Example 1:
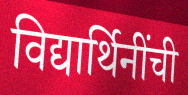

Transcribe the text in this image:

विद्यार्थिनींची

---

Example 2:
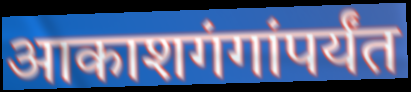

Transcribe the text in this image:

आकाशगंगांपर्यंत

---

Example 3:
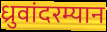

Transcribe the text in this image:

ध्रुवांदरम्यान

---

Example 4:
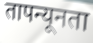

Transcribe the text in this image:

तापन्यूनता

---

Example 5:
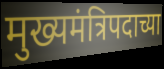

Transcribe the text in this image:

मुख्यमंत्रिपदाच्या